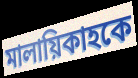
মালায়িকাহকে